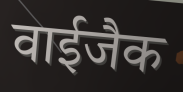
वाईजैक